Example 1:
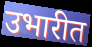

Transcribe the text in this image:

उभारीत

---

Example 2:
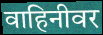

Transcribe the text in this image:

वाहिनीवर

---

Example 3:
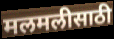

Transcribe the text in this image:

मलमलीसाठी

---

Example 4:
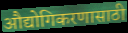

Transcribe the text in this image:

औद्योगिकरणासाठी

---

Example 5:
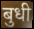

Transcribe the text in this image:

बुधी